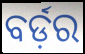
ବର୍ଡ଼ର